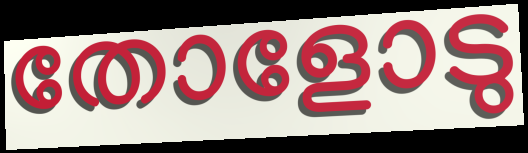
തോളോടു